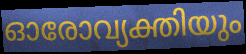
ഓരോവ്യക്തിയും